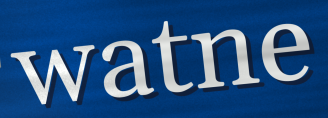
watne